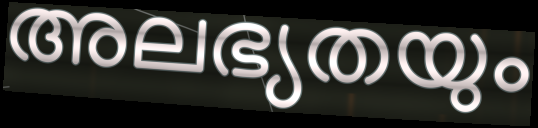
അലഭ്യതയും